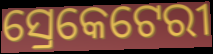
ସ୍ରେକେଟେରୀ